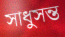
সাধুসন্ত